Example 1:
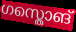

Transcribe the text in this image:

ഗസ്തൊങ്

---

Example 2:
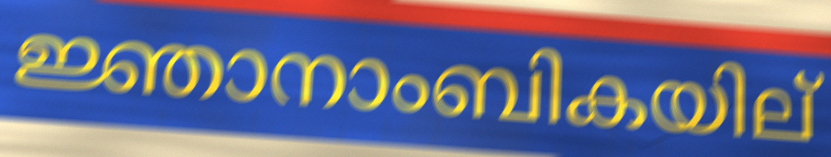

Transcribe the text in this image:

ജ്ഞാനാംബികയില്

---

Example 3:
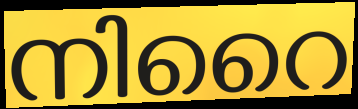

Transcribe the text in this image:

നിറൈ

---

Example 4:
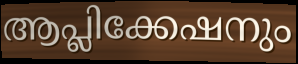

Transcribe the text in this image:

ആപ്ലിക്കേഷനും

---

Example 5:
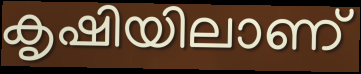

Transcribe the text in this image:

കൃഷിയിലാണ്